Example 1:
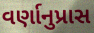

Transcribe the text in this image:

વર્ણાનુપ્રાસ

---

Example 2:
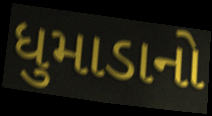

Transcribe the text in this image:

ધુમાડાનો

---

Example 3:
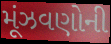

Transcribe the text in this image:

મૂંઝવણોની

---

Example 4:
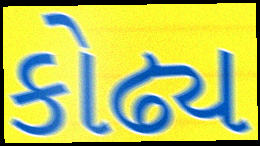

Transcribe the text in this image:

કોઢ્ય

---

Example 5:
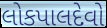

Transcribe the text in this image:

લોકપાલદેવો